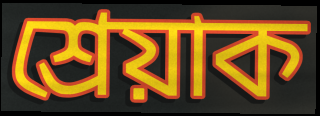
শ্ৰেয়াক